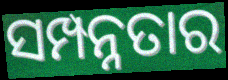
ସମ୍ପନ୍ନତାର